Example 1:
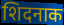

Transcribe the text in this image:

शिदनाक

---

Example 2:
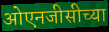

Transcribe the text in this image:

ओएनजीसीच्या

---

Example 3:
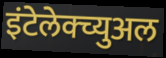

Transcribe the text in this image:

इंटेलेक्च्युअल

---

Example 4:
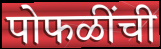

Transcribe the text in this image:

पोफळींची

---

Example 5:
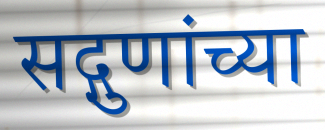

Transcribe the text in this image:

सद्गुणांच्या